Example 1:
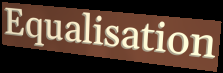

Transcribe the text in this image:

Equalisation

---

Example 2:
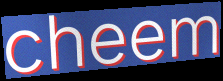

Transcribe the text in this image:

cheem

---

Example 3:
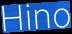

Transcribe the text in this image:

Hino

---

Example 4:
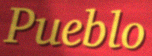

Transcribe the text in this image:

Pueblo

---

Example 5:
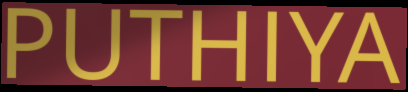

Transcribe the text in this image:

PUTHIYA